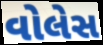
વોલેસ